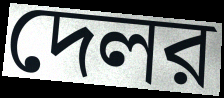
দেলর